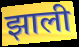
झाली